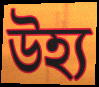
উহ্য